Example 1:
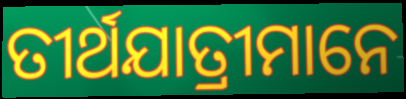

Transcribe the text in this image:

ତୀର୍ଥଯାତ୍ରୀମାନେ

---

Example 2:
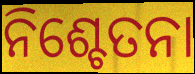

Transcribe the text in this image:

ନିଶ୍ଚେତନା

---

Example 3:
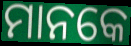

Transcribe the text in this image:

ମାନକେ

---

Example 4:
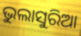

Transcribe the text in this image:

ଭୁଲାସୁରିଆ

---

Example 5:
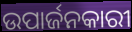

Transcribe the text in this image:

ଉପାର୍ଜନକାରୀ